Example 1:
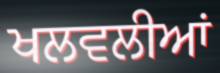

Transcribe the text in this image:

ਖਲਵਲੀਆਂ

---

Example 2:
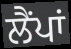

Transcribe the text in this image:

ਲੈਂਪਾਂ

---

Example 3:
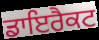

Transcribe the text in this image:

ਡਾਇਰੈਕਟ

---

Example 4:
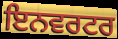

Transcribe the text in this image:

ਇਨਵਰਟਰ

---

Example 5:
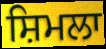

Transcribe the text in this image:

ਸ਼ਿਮਲਾ